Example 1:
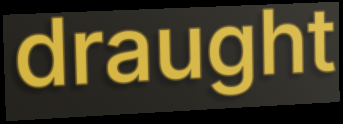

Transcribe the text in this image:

draught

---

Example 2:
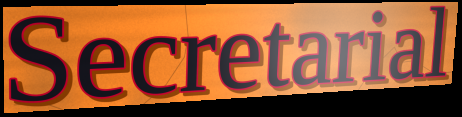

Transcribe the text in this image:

Secretarial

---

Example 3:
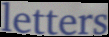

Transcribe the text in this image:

letters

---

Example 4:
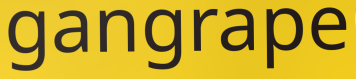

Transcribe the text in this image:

gangrape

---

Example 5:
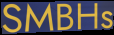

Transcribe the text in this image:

SMBHs